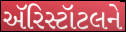
ઍરિસ્ટૉટલને